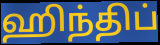
ஹிந்திப்